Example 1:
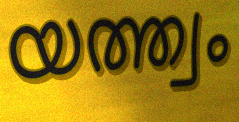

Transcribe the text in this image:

യത്ത്വം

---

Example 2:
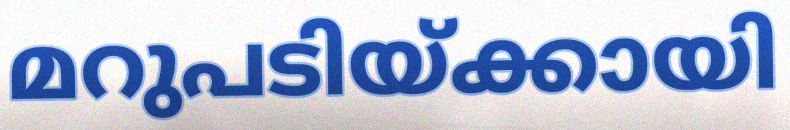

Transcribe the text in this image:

മറുപടിയ്ക്കായി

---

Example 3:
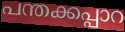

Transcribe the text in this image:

പന്തക്കപ്പാറ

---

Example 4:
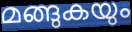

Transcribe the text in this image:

മങ്ങുകയും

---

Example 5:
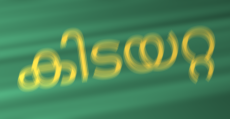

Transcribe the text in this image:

കിടയറ്റ